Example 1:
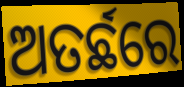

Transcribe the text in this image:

ଅତର୍ଛରେ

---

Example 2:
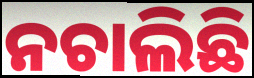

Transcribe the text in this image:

ନଚାଲିଛି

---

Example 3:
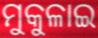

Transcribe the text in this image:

ମୁକୁଳାଇ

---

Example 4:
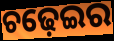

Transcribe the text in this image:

ଚଢ଼େଇର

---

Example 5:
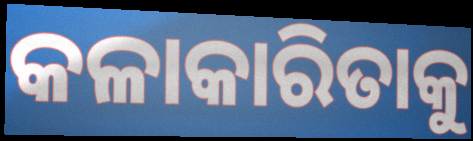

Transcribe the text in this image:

କଳାକାରିତାକୁ